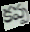
కప్ప